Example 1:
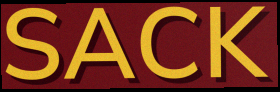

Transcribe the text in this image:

SACK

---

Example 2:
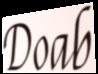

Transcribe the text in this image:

Doab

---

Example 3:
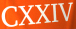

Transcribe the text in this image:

CXXIV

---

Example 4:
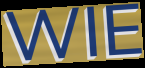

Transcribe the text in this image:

WIE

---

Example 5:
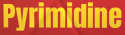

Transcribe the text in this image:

Pyrimidine